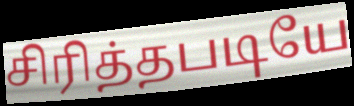
சிரித்தபடியே